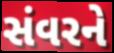
સંવરને